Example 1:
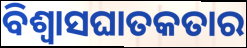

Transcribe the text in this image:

ବିଶ୍ଵାସଘାତକତାର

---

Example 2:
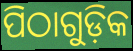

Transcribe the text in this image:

ପିଠାଗୁଡ଼ିକ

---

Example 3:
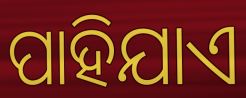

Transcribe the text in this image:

ପାହିଯାଏ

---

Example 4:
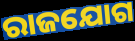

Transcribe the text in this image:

ରାଜଯୋଗ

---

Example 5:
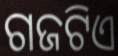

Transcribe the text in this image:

ଗଜଟିଏ